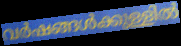
വർഷങ്ങൾക്കുള്ളിൽ